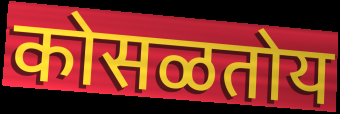
कोसळतोय